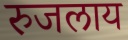
रुजलाय